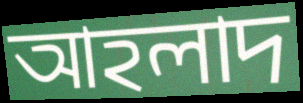
আহলাদ